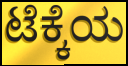
ಟೆಕ್ಕೆಯ